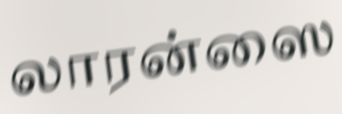
லாரன்ஸை